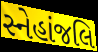
સ્નેહાંજલિ